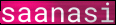
saanasi